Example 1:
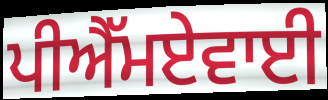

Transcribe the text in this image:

ਪੀਐੱਮਏਵਾਈ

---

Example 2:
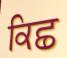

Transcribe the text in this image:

ਕਿਛ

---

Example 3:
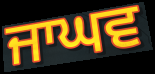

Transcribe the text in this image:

ਜਾਘਵ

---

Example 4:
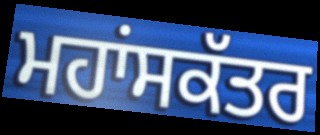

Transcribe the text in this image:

ਮਹਾਂਸਕੱਤਰ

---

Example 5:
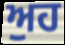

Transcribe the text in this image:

ਅੁਹ